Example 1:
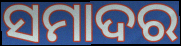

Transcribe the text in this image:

ସମାଦର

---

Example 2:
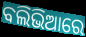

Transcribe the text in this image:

ବଲିଭିଆରେ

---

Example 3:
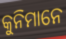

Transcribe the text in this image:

କୁନିମାନେ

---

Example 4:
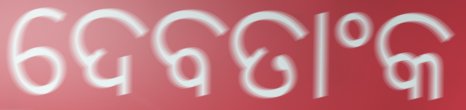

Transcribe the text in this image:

ଦେବତାଂକ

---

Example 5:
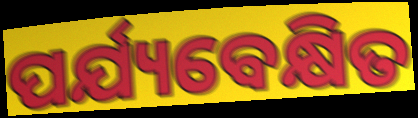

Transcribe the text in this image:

ପର୍ଯ୍ୟବେକ୍ଷିତ